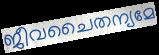
ജീവചൈതന്യമേ